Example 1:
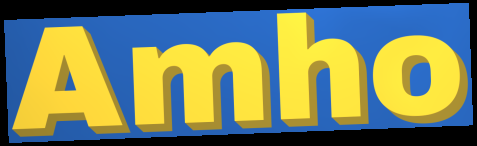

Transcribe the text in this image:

Amho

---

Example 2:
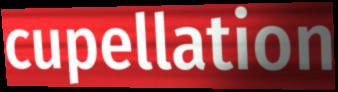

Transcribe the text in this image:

cupellation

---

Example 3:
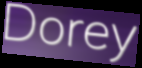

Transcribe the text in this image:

Dorey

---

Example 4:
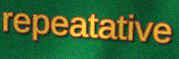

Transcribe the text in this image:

repeatative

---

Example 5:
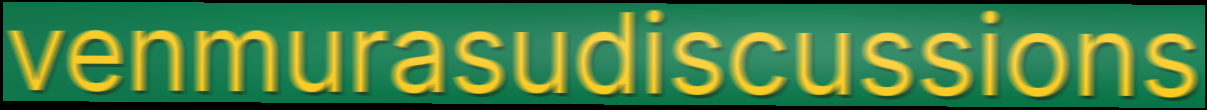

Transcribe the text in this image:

venmurasudiscussions